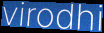
virodhi